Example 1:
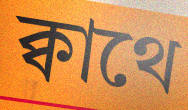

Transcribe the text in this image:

ক্বাথে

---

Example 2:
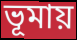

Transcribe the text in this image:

ভূমায়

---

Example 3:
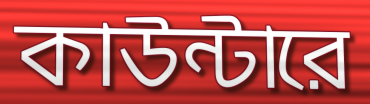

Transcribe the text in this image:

কাউন্টারে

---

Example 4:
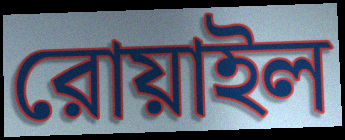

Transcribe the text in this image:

রোয়াইল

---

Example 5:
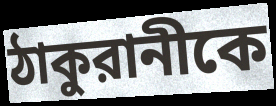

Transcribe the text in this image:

ঠাকুরানীকে